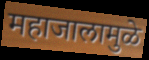
महाजालामुळे